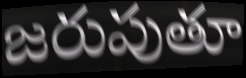
జరుపుతూ